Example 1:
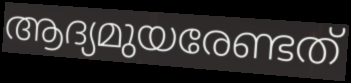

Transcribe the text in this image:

ആദ്യമുയരേണ്ടത്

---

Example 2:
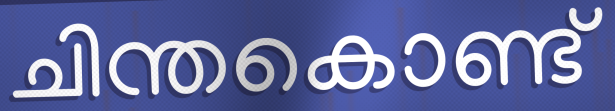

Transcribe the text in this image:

ചിന്തകൊണ്ട്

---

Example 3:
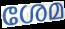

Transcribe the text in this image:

ശേമ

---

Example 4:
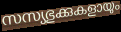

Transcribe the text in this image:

സസ്യഭുക്കുകളായും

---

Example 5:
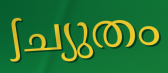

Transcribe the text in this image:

ഽച്യുതം